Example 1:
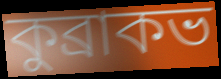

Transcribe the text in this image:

কুব্রাকভ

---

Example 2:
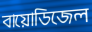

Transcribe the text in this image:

বায়োডিজেল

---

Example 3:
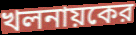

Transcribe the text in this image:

খলনায়কের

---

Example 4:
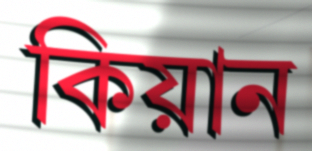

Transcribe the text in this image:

কিয়ান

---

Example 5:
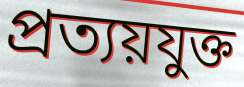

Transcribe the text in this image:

প্রত্যয়যুক্ত